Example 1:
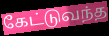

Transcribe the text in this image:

கேட்டுவந்த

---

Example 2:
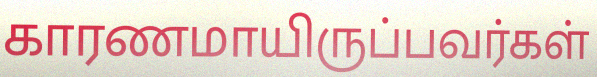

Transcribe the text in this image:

காரணமாயிருப்பவர்கள்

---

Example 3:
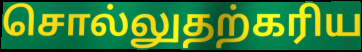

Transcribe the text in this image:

சொல்லுதற்கரிய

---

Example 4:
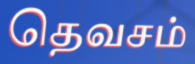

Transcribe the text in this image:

தெவசம்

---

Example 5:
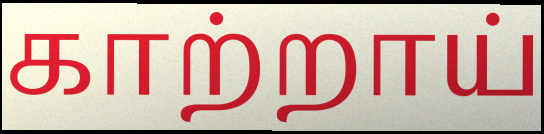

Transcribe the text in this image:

காற்றாய்